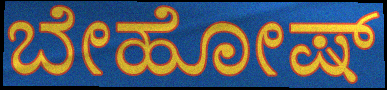
ಬೇಹೋಷ್